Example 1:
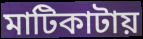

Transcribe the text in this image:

মাটিকাটায়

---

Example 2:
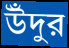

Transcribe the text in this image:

উঁদুর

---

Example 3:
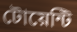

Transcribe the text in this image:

টোয়েন্টি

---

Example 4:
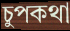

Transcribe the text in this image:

চুপকথা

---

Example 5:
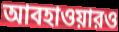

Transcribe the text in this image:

আবহাওয়ারও